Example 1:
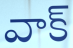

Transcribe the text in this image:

వాక్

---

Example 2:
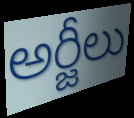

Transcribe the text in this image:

అర్జీలు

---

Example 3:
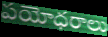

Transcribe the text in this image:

పయోధరాలు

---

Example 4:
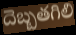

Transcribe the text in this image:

దెబ్బతగిలి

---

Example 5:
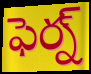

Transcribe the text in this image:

ఫెర్న్